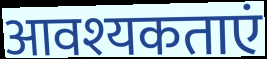
आवश्‍यकताएं